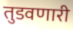
तुडवणारी